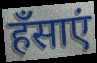
हँसाएं